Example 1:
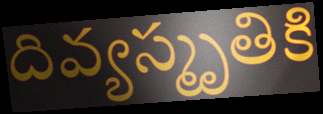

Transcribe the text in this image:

దివ్యస్మృతికి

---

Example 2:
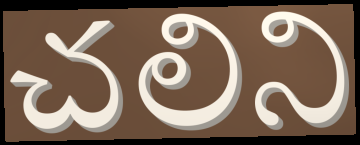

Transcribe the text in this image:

చలిని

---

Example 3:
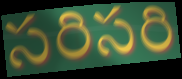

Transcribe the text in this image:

సరిసరి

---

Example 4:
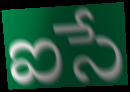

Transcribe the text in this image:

ఐసే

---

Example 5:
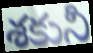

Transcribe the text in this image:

శకునీ